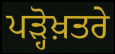
ਪੜ੍ਹੋਖ਼ਤਰੇ